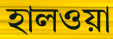
হালওয়া